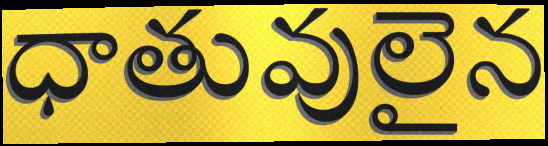
ధాతువులైన